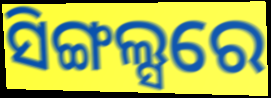
ସିଙ୍ଗଲ୍ସରେ